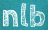
nlb